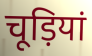
चूड़ियां